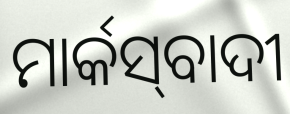
ମାର୍କସ୍‍ବାଦୀ